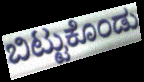
ಬಿಟ್ಟುಕೊಂಡು